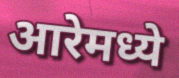
आरेमध्ये